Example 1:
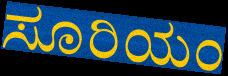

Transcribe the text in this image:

ಸೂರಿಯಂ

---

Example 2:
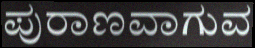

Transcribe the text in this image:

ಪುರಾಣವಾಗುವ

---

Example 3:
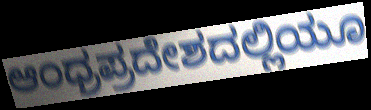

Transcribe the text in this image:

ಆಂಧ್ರಪ್ರದೇಶದಲ್ಲಿಯೂ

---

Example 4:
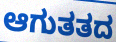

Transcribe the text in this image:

ಆಗುತತದ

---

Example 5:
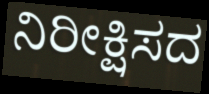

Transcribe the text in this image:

ನಿರೀಕ್ಷಿಸದ